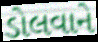
ડોલવાને